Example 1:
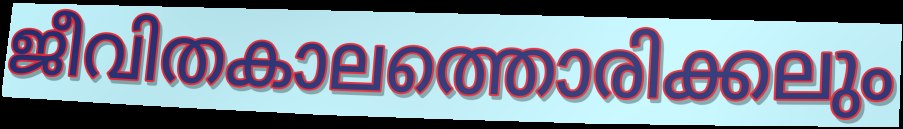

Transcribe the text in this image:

ജീവിതകാലത്തൊരിക്കലും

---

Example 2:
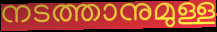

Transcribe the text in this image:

നടത്താനുമുള്ള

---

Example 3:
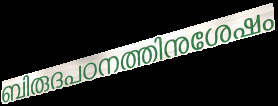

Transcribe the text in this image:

ബിരുദപഠനത്തിനുശേഷം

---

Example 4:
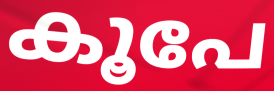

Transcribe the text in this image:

കൂപേ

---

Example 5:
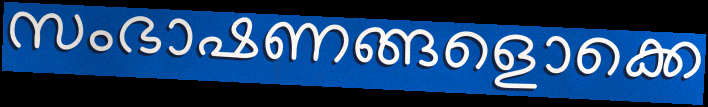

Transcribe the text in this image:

സംഭാഷണങ്ങളൊക്കെ